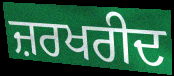
ਜ਼ਰਖਰੀਦ